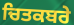
ਚਿਤਕਬਰੇ